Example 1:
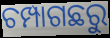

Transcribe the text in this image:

ଚମ୍ପାଗଛରୁ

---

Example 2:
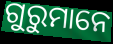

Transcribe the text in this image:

ଗୁରୁମାନେ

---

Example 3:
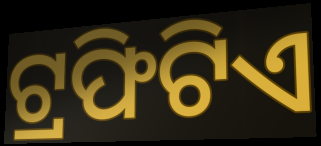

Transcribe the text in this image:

ଟ୍ରଫିଟିଏ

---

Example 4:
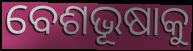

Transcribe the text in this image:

ବେଶଭୂଷାକୁ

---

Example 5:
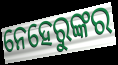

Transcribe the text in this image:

ନେହେରୁଙ୍କର